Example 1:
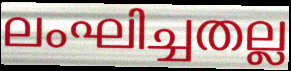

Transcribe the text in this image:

ലംഘിച്ചതല്ല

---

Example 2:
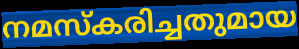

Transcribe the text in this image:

നമസ്കരിച്ചതുമായ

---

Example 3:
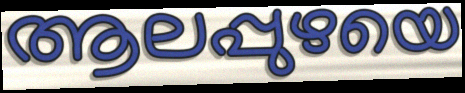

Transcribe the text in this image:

ആലപ്പുഴയെ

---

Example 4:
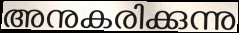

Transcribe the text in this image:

അനുകരിക്കുന്നു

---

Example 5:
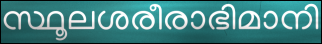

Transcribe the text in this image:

സ്ഥൂലശരീരാഭിമാനി